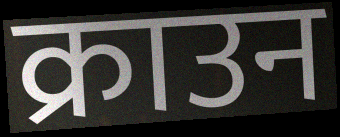
क्राउन